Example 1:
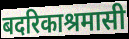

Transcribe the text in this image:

बदरिकाश्रमासी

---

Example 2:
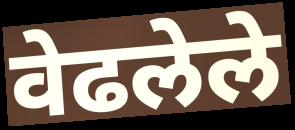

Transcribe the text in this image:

वेढलेले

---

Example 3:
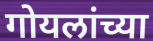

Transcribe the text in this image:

गोयलांच्या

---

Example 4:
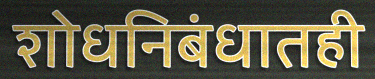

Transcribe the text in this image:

शोधनिबंधातही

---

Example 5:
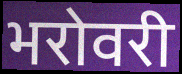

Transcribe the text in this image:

भरोवरी